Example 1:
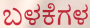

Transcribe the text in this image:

ಬಳಕೆಗಳ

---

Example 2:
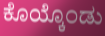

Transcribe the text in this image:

ಕೊಯ್ಕೊಂಡು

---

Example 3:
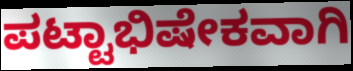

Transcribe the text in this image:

ಪಟ್ಟಾಭಿಷೇಕವಾಗಿ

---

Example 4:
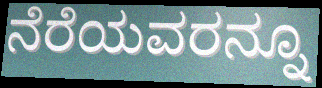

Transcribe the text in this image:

ನೆರೆಯವರನ್ನೂ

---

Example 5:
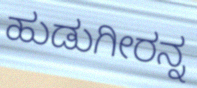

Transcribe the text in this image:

ಹುಡುಗೀರನ್ನ